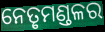
ନେତୃମଣ୍ଡଳର